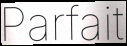
Parfait